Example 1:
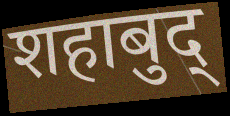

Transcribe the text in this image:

शहाबुद्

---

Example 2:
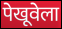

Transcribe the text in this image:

पेखूवेला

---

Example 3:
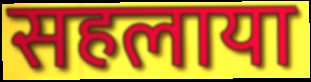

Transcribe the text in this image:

सहलाया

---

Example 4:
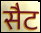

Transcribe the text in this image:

सैट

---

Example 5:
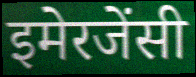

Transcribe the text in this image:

इमेरजेंसी